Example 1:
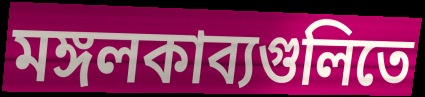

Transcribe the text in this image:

মঙ্গলকাব্যগুলিতে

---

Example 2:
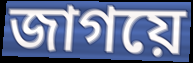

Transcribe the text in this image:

জাগয়ে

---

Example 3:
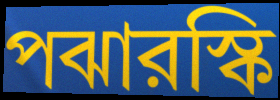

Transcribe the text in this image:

পঝারস্কি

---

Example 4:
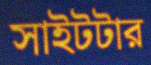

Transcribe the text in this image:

সাইটটার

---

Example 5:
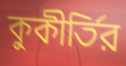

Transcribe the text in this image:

কুকীর্তির